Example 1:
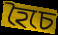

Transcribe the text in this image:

হৈচে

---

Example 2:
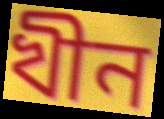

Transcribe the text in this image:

খীন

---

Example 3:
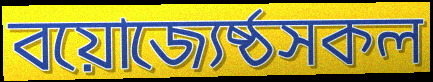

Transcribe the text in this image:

বয়োজ্যেষ্ঠসকল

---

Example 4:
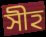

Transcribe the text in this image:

সীহ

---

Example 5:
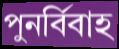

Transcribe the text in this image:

পুনৰ্বিবাহ